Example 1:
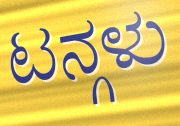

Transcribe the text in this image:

ಟನ್ಗಳು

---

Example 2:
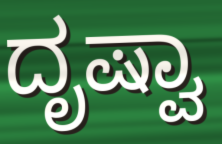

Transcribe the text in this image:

ದೃಷ್ವಾ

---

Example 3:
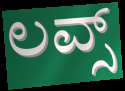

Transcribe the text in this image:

ಲವ್ಸ್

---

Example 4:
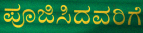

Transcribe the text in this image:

ಪೂಜಿಸಿದವರಿಗೆ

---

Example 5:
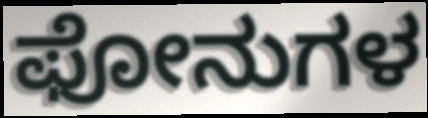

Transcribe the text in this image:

ಫೋನುಗಳ